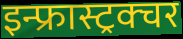
इन्फ्रास्ट्रक्‍चर